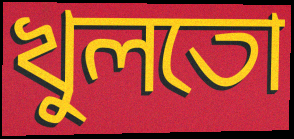
খুলতো